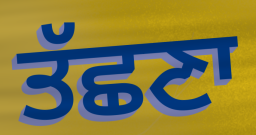
ਤੱਛਣਾ